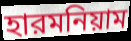
হারমনিয়াম